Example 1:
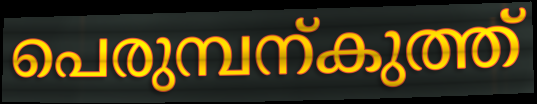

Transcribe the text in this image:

പെരുമ്പന്കുത്ത്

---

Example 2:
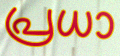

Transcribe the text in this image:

പ്രധാ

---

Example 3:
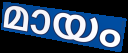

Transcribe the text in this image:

മായം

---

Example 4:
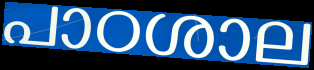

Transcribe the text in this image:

പാഠശാല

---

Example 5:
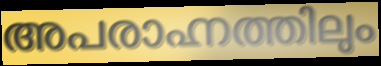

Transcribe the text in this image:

അപരാഹ്നത്തിലും